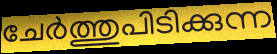
ചേർത്തുപിടിക്കുന്ന